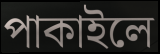
পাকাইলে